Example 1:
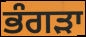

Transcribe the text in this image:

ਭੰਗੜਾ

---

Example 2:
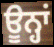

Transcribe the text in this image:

ਊਨ੍ਹਾਂ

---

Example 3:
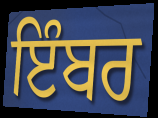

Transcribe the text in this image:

ਇੰਬਰ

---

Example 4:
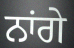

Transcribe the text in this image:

ਨਾਂਗੇ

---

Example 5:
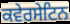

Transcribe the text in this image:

ਕਵੇਰਸੇਟਿਨ